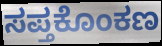
ಸಪ್ತಕೊಂಕಣ